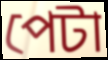
পেটা